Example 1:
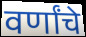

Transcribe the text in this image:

वर्णांचे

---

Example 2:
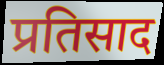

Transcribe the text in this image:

प्रतिसाद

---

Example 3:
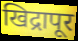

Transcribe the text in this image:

खिद्रापूर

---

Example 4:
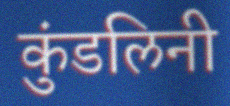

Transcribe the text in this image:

कुंडलिनी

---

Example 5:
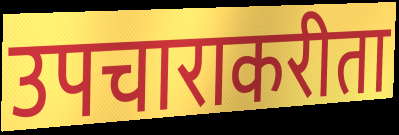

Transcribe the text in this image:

उपचाराकरीता